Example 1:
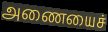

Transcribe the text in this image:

அணையைச்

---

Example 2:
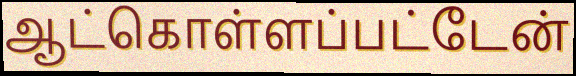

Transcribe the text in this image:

ஆட்கொள்ளப்பட்டேன்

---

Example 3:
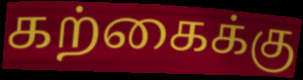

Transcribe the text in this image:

கற்கைக்கு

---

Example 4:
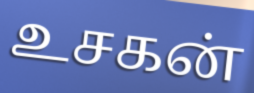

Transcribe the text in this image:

உசகன்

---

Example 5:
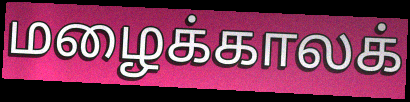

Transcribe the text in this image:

மழைக்காலக்